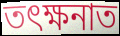
তৎক্ষনাত